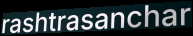
rashtrasanchar